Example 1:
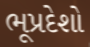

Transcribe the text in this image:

ભૂપ્રદેશો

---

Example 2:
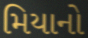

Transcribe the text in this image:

મિયાનો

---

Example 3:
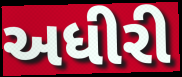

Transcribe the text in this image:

અધીરી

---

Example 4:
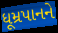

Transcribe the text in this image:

ધૂમ્રપાનને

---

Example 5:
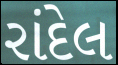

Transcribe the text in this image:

રાંદેલ